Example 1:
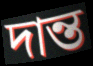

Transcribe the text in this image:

দান্ত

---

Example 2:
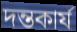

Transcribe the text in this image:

দন্তকার্য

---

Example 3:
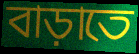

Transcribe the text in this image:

বাড়াতে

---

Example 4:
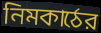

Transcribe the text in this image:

নিমকাঠের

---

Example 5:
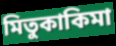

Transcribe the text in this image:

মিতুকাকিমা